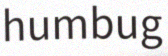
humbug